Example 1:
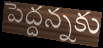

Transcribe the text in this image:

పెద్దన్నకు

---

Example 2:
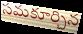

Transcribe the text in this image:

సమకూర్చిన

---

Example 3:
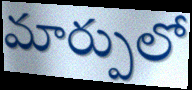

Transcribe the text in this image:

మార్పులో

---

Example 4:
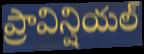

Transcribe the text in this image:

ప్రావిన్షియల్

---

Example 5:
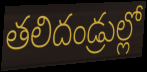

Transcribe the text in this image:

తలిదండ్రుల్లో